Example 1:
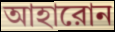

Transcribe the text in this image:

আহারোন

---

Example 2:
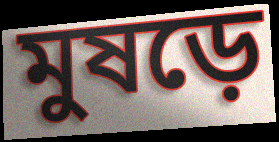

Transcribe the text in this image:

মুষড়ে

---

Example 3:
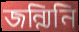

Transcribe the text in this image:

জন্মিনি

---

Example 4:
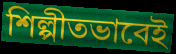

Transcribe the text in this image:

শিল্পীতভাবেই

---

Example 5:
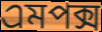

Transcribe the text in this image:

এমপক্স